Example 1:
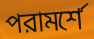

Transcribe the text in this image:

পরামর্শে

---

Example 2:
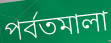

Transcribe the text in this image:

পর্বতমালা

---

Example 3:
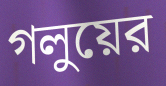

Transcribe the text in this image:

গলুয়ের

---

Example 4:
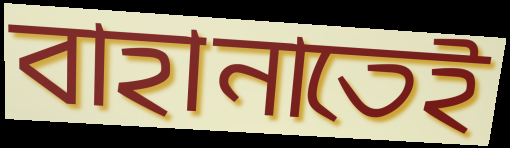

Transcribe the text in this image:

বাহানাতেই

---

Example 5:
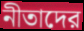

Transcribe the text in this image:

নীতাদের